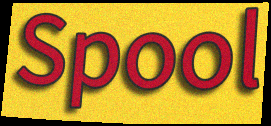
Spool